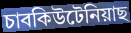
চাবকিউটেনিয়াছ